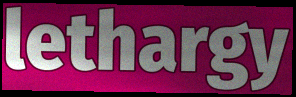
lethargy